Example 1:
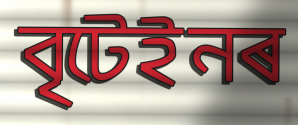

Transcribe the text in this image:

বৃটেইনৰ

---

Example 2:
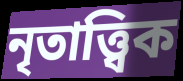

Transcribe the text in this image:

নৃতাত্ত্বিক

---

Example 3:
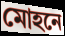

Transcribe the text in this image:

মোহনে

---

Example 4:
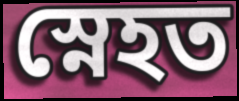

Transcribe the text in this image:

স্নেহত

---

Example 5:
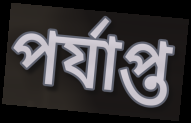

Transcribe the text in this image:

পৰ্যাপ্ত